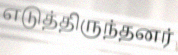
எடுத்திருந்தனர்